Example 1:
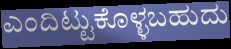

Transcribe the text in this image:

ಎಂದಿಟ್ಟುಕೊಳ್ಳಬಹುದು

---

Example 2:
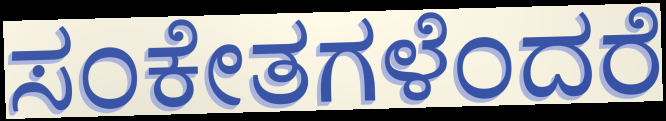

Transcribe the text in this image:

ಸಂಕೇತಗಳೆಂದರೆ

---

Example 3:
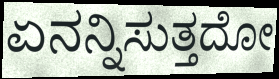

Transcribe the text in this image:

ಏನನ್ನಿಸುತ್ತದೋ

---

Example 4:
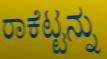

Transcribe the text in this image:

ರಾಕೆಟ್ಟನ್ನು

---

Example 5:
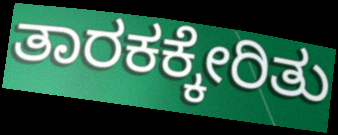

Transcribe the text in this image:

ತಾರಕಕ್ಕೇರಿತು